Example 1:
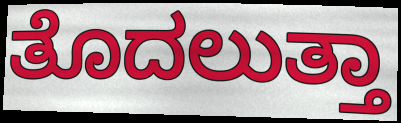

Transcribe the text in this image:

ತೊದಲುತ್ತಾ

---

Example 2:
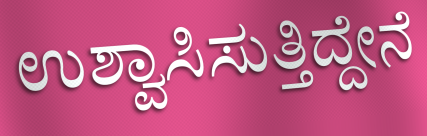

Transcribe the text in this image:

ಉಶ್ವಾಸಿಸುತ್ತಿದ್ದೇನೆ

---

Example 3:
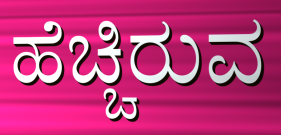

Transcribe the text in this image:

ಹೆಚ್ಚಿರುವ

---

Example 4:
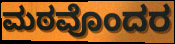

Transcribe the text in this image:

ಮಠವೊಂದರ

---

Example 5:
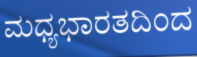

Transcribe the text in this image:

ಮಧ್ಯಭಾರತದಿಂದ